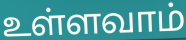
உள்ளவாம்